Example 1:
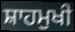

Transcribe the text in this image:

ਸ਼ਾਹਮੁਖੀ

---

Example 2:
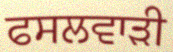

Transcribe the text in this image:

ਫਸਲਵਾੜੀ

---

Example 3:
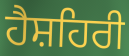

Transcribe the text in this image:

ਹੈਸ਼ਹਿਰੀ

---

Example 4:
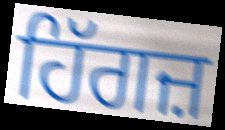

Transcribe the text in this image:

ਹਿੱਗਜ਼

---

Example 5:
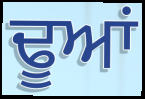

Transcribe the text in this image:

ਢੂਆਂ